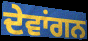
ਦੇਵਾਂਗਨ